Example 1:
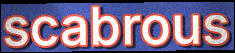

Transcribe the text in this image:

scabrous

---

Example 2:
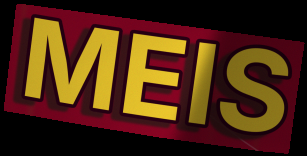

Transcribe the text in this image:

MEIS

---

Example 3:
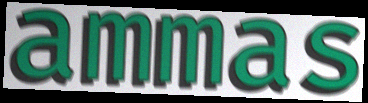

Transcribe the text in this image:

ammas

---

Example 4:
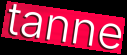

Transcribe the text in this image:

tanne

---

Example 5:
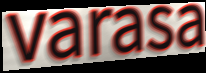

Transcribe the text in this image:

varasa